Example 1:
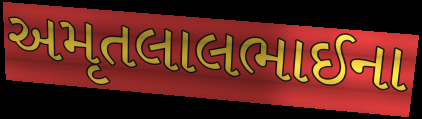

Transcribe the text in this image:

અમૃતલાલભાઈના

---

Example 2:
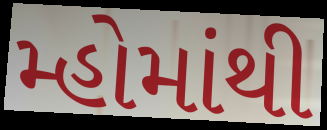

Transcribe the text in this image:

મ્હોમાંથી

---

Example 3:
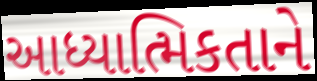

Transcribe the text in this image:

આધ્યાત્મિકતાને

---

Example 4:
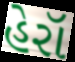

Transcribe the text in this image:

હેરૉ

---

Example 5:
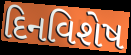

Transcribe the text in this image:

દિનવિશેષ